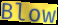
Blow